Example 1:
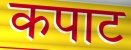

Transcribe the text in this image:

कपाट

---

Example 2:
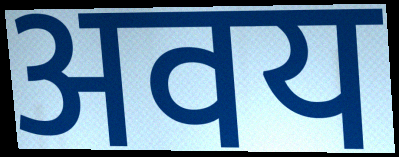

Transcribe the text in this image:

अवय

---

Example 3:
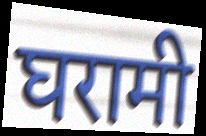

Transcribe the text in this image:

घरामी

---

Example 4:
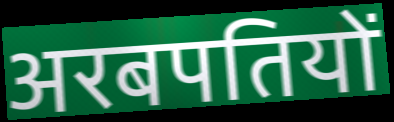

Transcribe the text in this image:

अरबपतियों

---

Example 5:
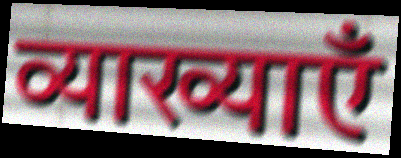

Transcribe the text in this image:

व्याख्याएँ